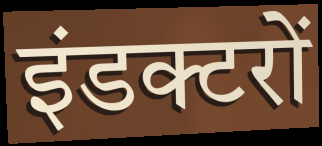
इंडक्टरों